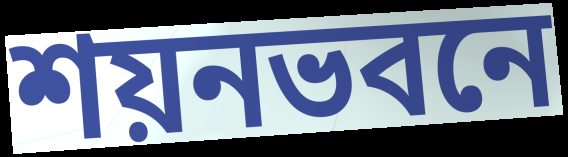
শয়নভবনে